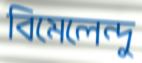
বিমেলেন্দু